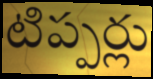
టిప్పర్లు